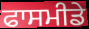
ਫਾਸਮੀਡੇ